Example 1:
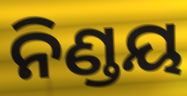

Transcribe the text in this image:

ନିଣ୍ଡୟ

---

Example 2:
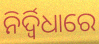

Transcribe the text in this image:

ନିର୍ଦ୍ୱିଧାରେ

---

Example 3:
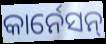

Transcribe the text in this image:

କାର୍ନେସନ୍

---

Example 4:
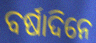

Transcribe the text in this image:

ବର୍ଷାଦିନେ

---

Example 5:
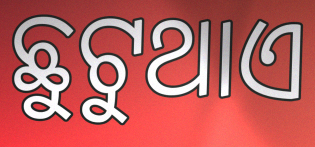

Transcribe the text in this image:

ଛୁଟୁଥାଏ